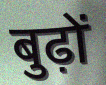
बुढ़ों